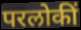
परलोकीं